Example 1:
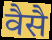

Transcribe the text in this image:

वैसै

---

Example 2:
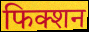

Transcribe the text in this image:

फिक्शन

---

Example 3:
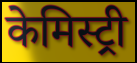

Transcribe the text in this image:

केमिस्ट्री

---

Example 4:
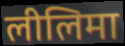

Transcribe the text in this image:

लीलिमा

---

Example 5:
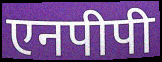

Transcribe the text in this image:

एनपीपी